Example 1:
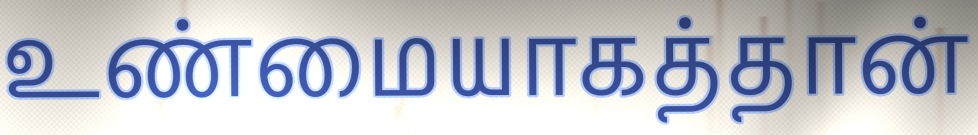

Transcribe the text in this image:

உண்மையாகத்தான்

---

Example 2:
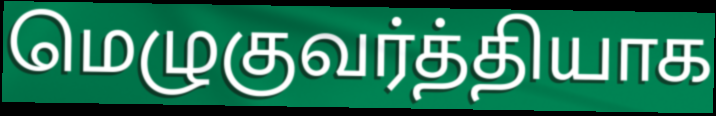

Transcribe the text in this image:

மெழுகுவர்த்தியாக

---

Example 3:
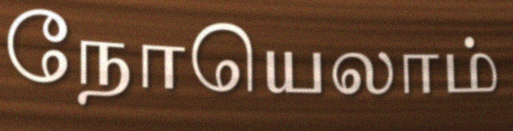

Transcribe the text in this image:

நோயெலாம்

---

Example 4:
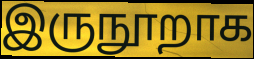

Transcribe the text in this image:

இருநூறாக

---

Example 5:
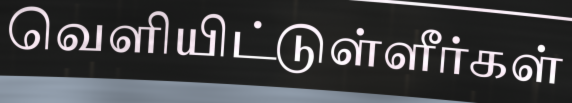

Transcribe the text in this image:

வெளியிட்டுள்ளீர்கள்